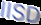
IISD